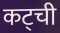
कट्ची